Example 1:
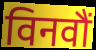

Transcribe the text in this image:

विनवौं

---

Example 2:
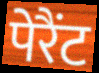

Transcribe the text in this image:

पेरैंट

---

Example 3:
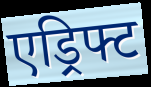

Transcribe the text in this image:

एड्रिफ्ट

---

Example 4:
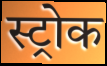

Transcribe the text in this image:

स्ट्रोक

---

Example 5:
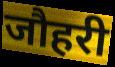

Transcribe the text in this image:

जौहरी